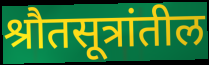
श्रौतसूत्रांतील